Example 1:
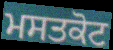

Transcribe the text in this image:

ਮਸਤਕੋਟ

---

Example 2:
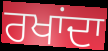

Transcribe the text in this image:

ਰਖਾਂਦਾ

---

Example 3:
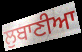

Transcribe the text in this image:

ਲੁਬਾਣੀਆ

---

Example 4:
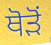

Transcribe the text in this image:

ਥੋੜੋਂ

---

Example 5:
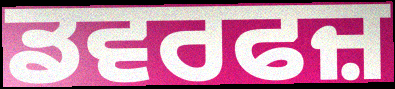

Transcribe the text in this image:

ਡਵਰਫਜ਼